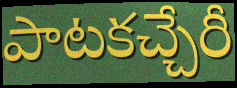
పాటకచ్చేరీ